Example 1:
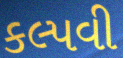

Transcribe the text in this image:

કલ્પવી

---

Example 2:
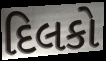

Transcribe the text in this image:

દિલકો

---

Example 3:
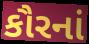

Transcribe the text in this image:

કૌરનાં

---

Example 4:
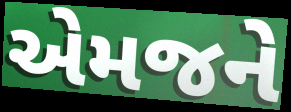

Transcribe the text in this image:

એમજને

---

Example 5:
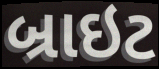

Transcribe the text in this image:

બ્રાઇટ